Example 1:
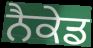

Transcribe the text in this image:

ਨੈਕੇਡ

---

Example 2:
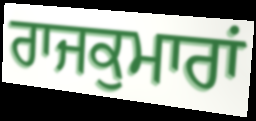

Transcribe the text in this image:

ਰਾਜਕੁਮਾਰਾਂ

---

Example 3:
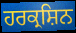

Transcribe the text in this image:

ਹਰਕ੍ਰਸ਼ਿਨ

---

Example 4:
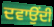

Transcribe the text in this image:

ਦਵਾਉਂਦੀ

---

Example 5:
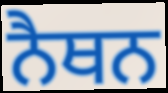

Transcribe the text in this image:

ਨੈਥਨ